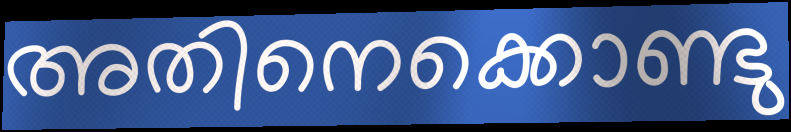
അതിനെക്കൊണ്ടു